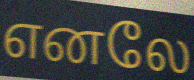
எனலே